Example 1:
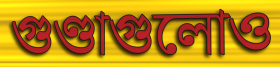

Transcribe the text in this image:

গুণ্ডাগুলোও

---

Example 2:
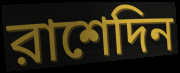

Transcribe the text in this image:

রাশেদিন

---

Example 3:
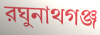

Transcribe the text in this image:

রঘুনাথগঞ্জ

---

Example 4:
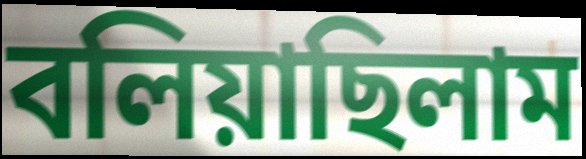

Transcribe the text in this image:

বলিয়াছিলাম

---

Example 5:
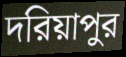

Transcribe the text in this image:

দরিয়াপুর